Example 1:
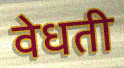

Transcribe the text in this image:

वेधती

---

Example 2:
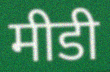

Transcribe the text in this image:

मीडी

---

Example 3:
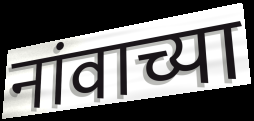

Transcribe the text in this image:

नांवाच्या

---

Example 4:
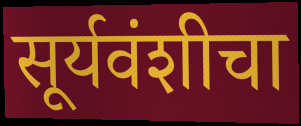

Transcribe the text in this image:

सूर्यवंशीचा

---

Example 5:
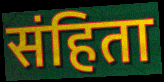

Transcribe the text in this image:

संहिता